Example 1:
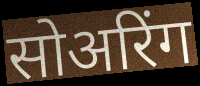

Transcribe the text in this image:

सोअरिंग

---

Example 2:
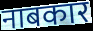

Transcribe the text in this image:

नाबकार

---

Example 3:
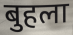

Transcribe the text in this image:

बुहला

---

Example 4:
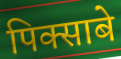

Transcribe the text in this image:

पिक्साबे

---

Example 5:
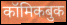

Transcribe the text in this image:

कॉमिकबुक